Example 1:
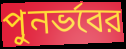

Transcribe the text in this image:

পুনর্ভবের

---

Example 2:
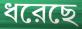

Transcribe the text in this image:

ধরেছে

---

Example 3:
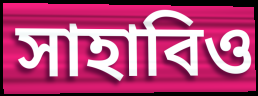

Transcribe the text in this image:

সাহাবিও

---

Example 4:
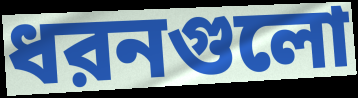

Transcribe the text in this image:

ধরনগুলো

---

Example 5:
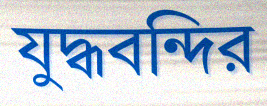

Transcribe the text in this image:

যুদ্ধবন্দির